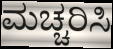
ಮಚ್ಚರಿಸಿ